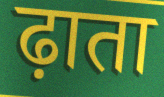
ढ़ाता